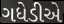
ગધેડીએ